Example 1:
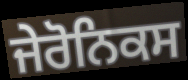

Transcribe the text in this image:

ਜੇਰੋਨਿਕਸ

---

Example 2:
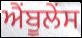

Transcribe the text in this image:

ਐਂਬੂਲੇਂਸ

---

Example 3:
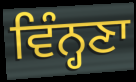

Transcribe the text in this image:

ਵਿੰਨ੍ਹਣਾ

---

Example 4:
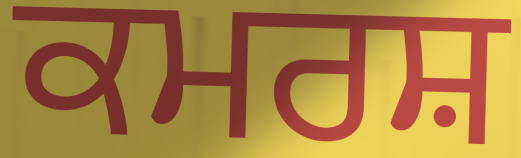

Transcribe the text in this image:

ਕਮਰਸ਼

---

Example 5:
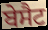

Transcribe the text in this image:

ਬੇਸੈਟ